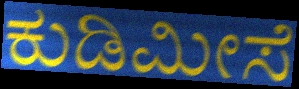
ಕುಡಿಮೀಸೆ